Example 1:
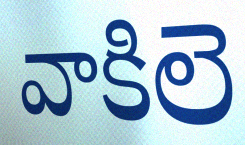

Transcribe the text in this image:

వాకిలె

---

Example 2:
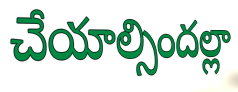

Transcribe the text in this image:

చేయాల్సిందల్లా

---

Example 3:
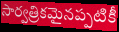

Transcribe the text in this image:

సార్వత్రికమైనప్పటికీ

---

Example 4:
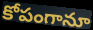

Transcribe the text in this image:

కోపంగానూ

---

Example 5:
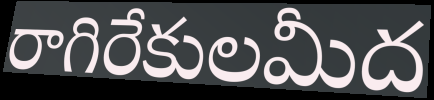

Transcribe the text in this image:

రాగిరేకులమీద